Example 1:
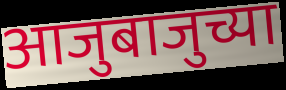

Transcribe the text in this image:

आजुबाजुच्या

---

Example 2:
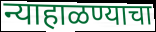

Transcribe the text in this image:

न्याहाळण्याचा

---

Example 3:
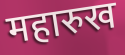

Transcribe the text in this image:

महारुख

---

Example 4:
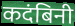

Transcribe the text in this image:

कदंबिनी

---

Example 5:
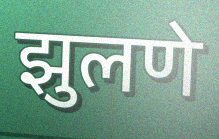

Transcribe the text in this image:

झुलणे